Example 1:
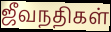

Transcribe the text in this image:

ஜீவநதிகள்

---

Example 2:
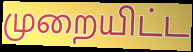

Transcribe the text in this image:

முறையிட்ட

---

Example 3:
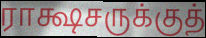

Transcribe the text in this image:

ராக்ஷசருக்குத்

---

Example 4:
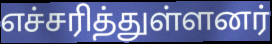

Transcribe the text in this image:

எச்சரித்துள்ளனர்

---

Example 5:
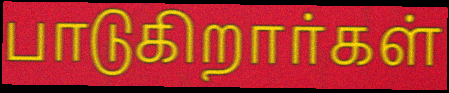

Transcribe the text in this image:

பாடுகிறார்கள்